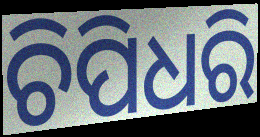
ଚିପିଧରି